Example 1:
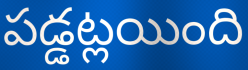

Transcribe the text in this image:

పడ్డట్లయింది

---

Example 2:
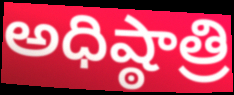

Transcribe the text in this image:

అధిష్ఠాత్రి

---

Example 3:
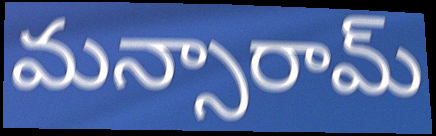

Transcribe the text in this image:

మన్సారామ్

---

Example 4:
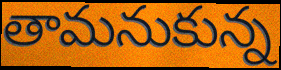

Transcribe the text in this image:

తామనుకున్న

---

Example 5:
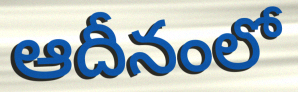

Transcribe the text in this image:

ఆదీనంలో